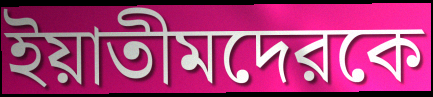
ইয়াতীমদেরকে